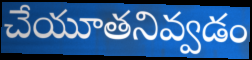
చేయూతనివ్వడం